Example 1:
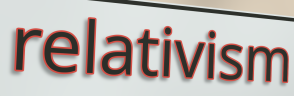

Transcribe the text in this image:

relativism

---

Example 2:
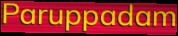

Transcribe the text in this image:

Paruppadam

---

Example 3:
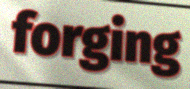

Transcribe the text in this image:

forging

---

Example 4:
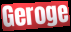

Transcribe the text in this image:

Geroge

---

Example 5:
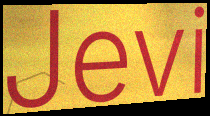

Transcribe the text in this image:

Jevi